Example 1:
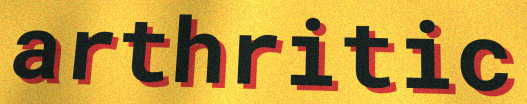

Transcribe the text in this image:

arthritic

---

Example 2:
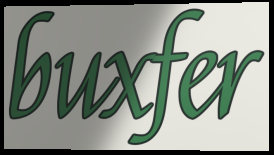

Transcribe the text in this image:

buxfer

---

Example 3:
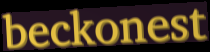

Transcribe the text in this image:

beckonest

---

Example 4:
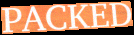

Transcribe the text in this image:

PACKED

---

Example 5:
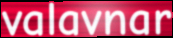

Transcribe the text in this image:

valavnar